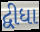
દ્વીધા